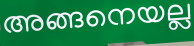
അങ്ങനെയല്ല